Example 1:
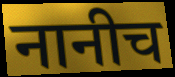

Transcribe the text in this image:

नानीच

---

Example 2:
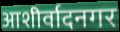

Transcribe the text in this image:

आशीर्वादनगर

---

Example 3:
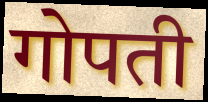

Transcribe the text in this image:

गोपती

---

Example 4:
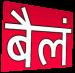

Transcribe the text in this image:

बैलं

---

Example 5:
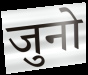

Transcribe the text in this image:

जुनो